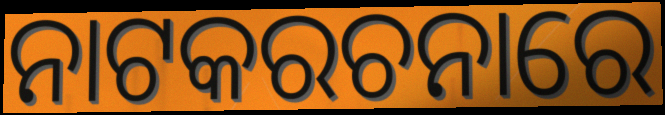
ନାଟକରଚନାରେ